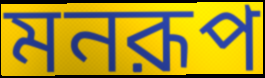
মনরূপ